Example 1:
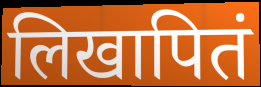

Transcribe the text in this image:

लिखापितं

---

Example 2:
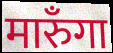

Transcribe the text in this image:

मारुँगा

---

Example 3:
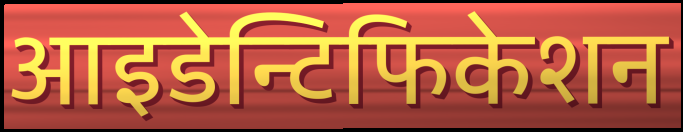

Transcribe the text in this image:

आइडेन्टिफिकेशन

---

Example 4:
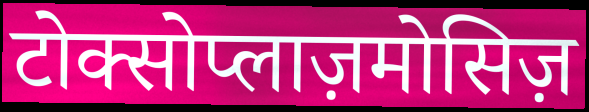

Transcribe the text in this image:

टोक्सोप्लाज़मोसिज़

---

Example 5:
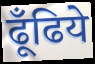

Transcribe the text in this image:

ढूँढिये